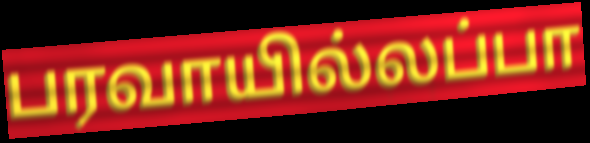
பரவாயில்லப்பா